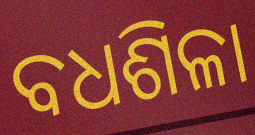
ବଧଶିଳା